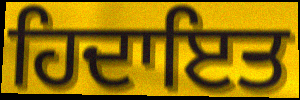
ਹਿਦਾਇਤ